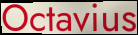
Octavius